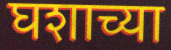
घशाच्या